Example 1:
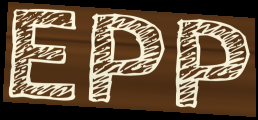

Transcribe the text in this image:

EPP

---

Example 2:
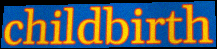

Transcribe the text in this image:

childbirth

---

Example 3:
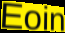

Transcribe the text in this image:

Eoin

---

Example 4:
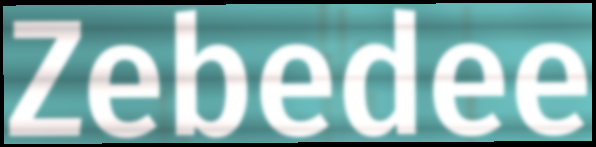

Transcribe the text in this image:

Zebedee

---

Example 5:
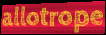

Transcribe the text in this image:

allotrope